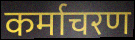
कर्माचरण